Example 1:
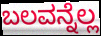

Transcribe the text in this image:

ಬಲವನ್ನೆಲ್ಲ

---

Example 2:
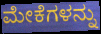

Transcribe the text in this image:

ಮೇಕೆಗಳನ್ನು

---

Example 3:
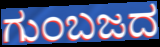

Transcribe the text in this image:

ಗುಂಬಜದ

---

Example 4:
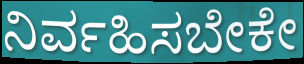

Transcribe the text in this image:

ನಿರ್ವಹಿಸಬೇಕೇ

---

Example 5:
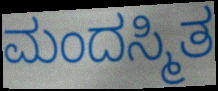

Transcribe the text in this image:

ಮಂದಸ್ಮಿತ